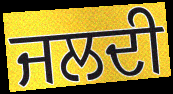
ਜਲਦੀ